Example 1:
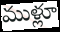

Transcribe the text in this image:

ముళ్లూ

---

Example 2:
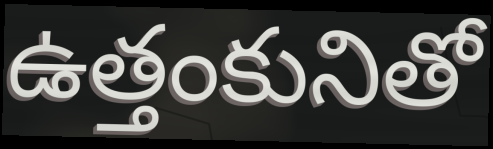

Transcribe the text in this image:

ఉత్తంకునితో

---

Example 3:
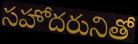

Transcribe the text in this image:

సహోదరునితో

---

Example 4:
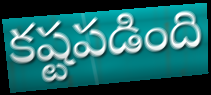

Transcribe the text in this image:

కష్టపడింది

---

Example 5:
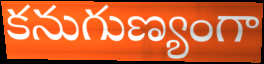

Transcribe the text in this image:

కనుగుణ్యంగా